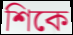
শিকে